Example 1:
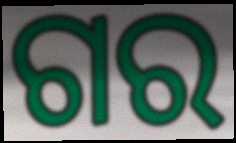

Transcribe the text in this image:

ଗର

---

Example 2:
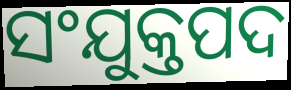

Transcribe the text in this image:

ସଂଯୁକ୍ତପଦ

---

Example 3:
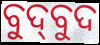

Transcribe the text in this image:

ବୁଦ୍‌ବୁଦ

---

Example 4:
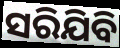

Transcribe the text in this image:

ସରିଯିବି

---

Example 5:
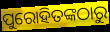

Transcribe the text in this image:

ପୁରୋହିତଙ୍କଠାରୁ